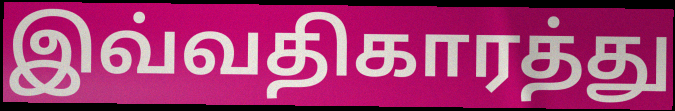
இவ்வதிகாரத்து